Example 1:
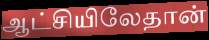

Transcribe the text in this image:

ஆட்சியிலேதான்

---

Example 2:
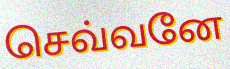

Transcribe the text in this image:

செவ்வனே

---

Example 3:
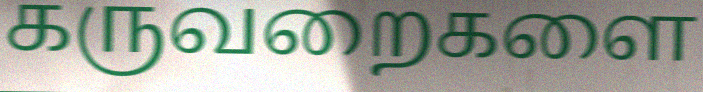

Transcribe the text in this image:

கருவறைகளை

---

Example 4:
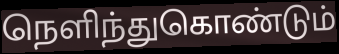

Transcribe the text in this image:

நெளிந்துகொண்டும்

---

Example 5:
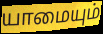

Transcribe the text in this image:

யாமையும்